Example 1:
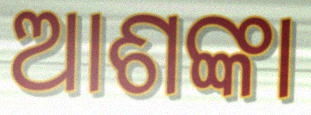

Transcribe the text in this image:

ଆଶଙ୍କା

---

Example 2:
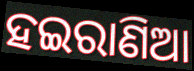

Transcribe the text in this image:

ହଇରାଣିଆ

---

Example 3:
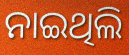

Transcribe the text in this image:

ନାଇଥିଲି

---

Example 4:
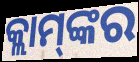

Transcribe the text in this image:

କ୍ଲାମ୍‌ଙ୍କର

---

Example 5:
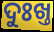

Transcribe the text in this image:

ଦୁଃଖ୍ତ